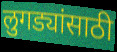
लुगड्यांसाठी